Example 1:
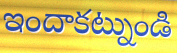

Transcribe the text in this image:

ఇందాకట్నుండి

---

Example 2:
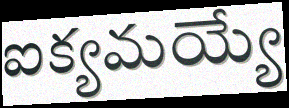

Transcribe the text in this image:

ఐక్యమయ్యే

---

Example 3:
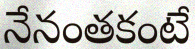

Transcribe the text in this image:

నేనంతకంటే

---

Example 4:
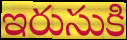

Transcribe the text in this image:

ఇరుసుకి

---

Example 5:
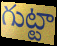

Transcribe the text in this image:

గుట్టా